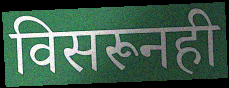
विसरूनही